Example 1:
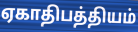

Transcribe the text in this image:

ஏகாதிபத்தியம்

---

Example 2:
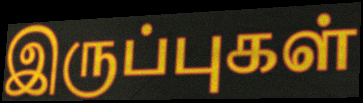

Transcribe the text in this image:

இருப்புகள்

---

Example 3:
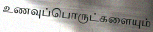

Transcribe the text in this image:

உணவுப்பொருட்களையும்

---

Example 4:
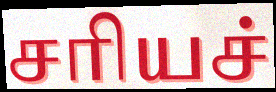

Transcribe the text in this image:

சரியச்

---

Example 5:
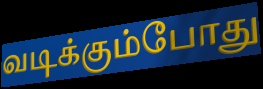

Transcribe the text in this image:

வடிக்கும்போது